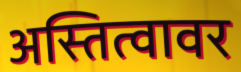
अस्तित्वावर